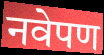
नवेपण